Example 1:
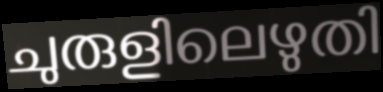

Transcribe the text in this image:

ചുരുളിലെഴുതി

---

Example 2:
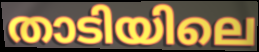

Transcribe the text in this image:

താടിയിലെ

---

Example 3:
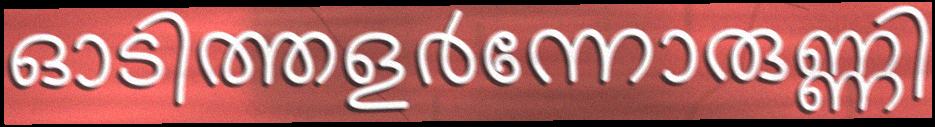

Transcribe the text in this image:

ഓടിത്തളർന്നോരുണ്ണി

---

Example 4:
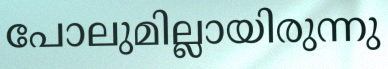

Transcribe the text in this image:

പോലുമില്ലായിരുന്നു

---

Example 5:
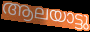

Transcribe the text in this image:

ആലയാട്ടു